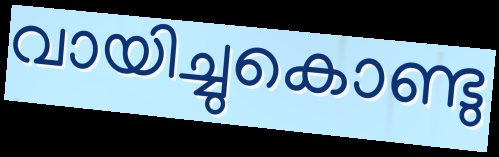
വായിച്ചുകൊണ്ടു